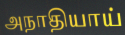
அநாதியாய்